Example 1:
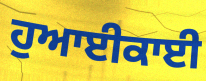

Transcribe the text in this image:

ਹੁਆਈਕਾਈ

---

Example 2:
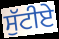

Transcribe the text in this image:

ਸੁੱਟੀਏ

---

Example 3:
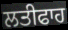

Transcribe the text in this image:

ਲਤੀਫਾਹ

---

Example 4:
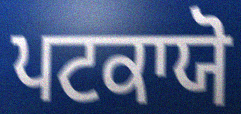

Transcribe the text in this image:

ਪਟਕਾਯੋ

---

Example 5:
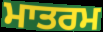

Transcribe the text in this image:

ਮਾਤਰਮ